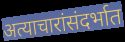
अत्याचारांसंदर्भात